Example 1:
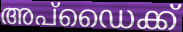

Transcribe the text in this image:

അപ്ഡൈക്ക്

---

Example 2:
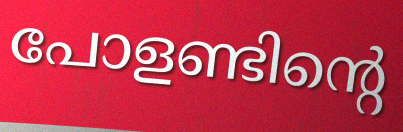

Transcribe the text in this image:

പോളണ്ടിന്റെ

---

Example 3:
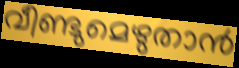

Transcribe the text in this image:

വീണ്ടുമെഴുതാൻ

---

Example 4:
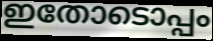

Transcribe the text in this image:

ഇതോടൊപ്പം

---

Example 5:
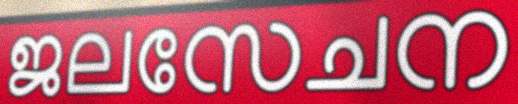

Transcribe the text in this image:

ജലസേചന